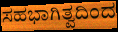
ಸಹಭಾಗಿತ್ವದಿಂದ